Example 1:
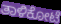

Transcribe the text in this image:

ತಾಳಿಕೋಟೆ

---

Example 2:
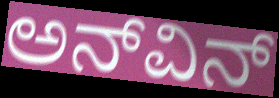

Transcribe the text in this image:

ಅನ್‌ವಿನ್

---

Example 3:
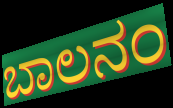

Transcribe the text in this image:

ಬಾಲನಂ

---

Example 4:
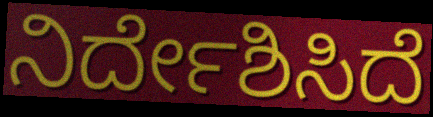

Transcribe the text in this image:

ನಿರ್ದೇಶಿಸಿದೆ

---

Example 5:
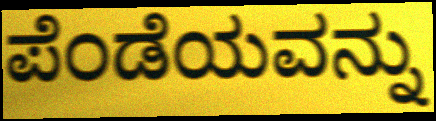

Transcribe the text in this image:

ಪೆಂಡೆಯವನ್ನು